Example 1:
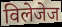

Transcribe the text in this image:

विलेजेज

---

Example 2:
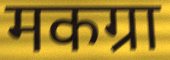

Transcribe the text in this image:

मकग्रा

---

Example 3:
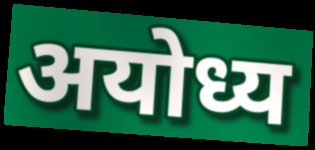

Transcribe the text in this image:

अयोध्य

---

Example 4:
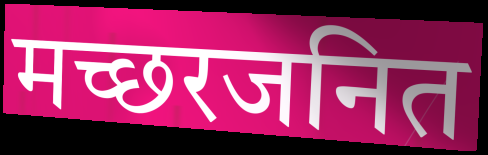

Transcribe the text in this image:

मच्छरजनित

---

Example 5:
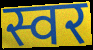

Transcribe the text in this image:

स्‍वर